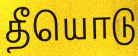
தீயொடு